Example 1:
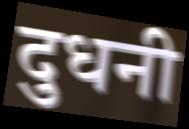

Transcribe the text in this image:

दुधनी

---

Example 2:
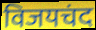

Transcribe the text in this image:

विजयचंद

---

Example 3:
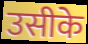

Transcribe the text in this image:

उसीके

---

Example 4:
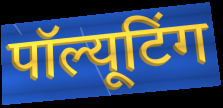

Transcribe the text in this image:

पॉल्यूटिंग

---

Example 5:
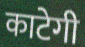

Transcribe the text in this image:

काटेगी